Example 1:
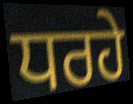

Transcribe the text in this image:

ਧਰਹੇ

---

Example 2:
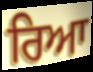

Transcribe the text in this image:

ਰਿਆ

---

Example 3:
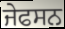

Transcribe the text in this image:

ਜੇਫਸਨ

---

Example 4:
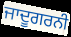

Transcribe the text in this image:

ਜਾਦੂਗਰਨੀ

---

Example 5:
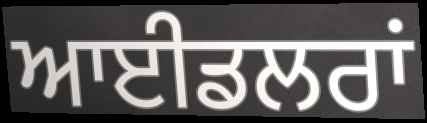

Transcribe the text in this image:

ਆਈਡਲਰਾਂ